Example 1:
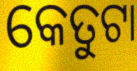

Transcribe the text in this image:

କେତୁଟା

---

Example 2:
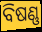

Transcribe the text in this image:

ବିଷଣ୍ଣ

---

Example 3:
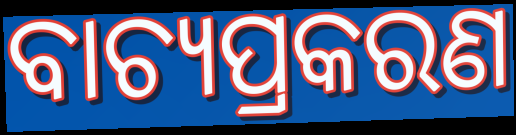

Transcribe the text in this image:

ବାଚ୍ୟପ୍ରକରଣ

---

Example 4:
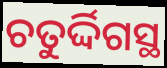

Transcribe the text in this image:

ଚତୁର୍ଦ୍ଦିଗସ୍ଥ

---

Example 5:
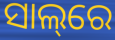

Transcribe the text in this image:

ସାଲ୍‌ରେ